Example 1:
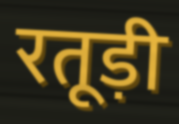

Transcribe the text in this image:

रतूड़ी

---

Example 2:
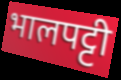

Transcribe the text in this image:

भालपट्टी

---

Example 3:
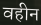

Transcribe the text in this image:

वहीन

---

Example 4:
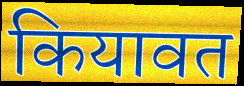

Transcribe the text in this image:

कियावत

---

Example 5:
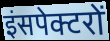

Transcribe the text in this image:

इंसपेक्टरों